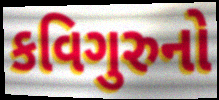
કવિગુરુનો